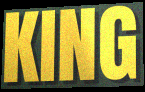
KING